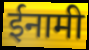
ईनामी